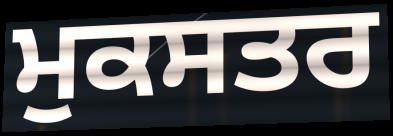
ਮੁਕਸਤਰ